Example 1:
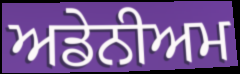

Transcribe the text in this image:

ਅਡੇਨੀਅਮ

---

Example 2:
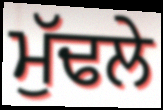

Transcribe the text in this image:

ਮੁੱਢਲੇ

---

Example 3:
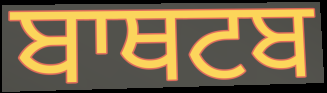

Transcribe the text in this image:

ਬਾਥਟਬ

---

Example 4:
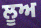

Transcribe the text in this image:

ਲੂਅ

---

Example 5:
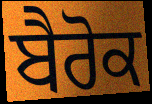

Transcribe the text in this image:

ਬੈਰੋਕ